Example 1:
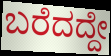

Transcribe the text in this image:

ಬರೆದದ್ದೇ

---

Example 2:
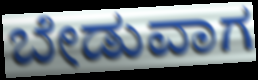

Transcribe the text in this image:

ಬೇಡುವಾಗ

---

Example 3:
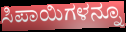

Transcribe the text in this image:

ಸಿಪಾಯಿಗಳನ್ನೂ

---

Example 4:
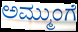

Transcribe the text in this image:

ಅಮ್ಮುಂಗೆ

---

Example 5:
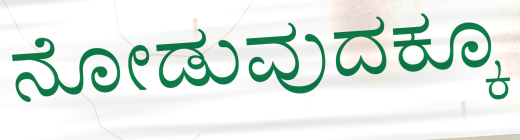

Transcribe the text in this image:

ನೋಡುವುದಕ್ಕೂ